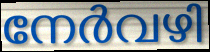
നേർവഴി